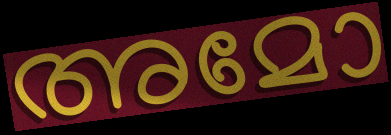
അമോ